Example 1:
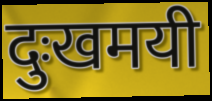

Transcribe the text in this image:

दुःखमयी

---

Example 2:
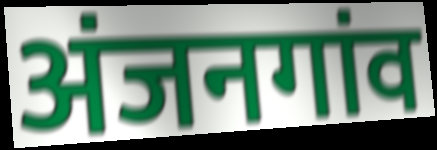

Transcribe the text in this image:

अंजनगांव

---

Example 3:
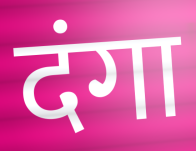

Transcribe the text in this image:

दंगा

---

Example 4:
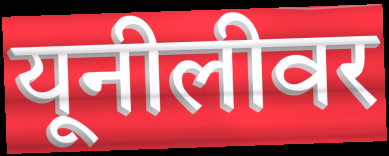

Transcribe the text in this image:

यूनीलीवर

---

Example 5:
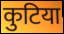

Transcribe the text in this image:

कुटिया